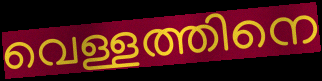
വെള്ളത്തിനെ